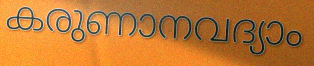
കരുണാനവദ്യാം